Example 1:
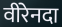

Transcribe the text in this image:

वीरेनदा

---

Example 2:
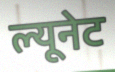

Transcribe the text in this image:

ल्यूनेट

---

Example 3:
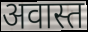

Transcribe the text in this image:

अवास्त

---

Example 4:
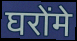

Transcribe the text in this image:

घरोंमे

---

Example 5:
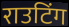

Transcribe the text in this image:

राउटिंग